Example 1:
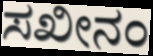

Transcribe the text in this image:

ಸಖೀನಂ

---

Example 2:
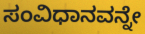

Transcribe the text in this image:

ಸಂವಿಧಾನವನ್ನೇ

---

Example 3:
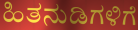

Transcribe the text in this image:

ಹಿತನುಡಿಗಳಿಗೆ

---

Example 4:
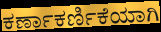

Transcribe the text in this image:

ಕರ್ಣಾಕರ್ಣಿಕೆಯಾಗಿ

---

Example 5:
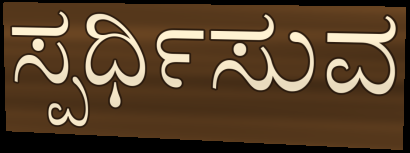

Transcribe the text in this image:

ಸ್ಪರ್ಧಿಸುವ